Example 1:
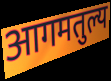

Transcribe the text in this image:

आगमतुल्य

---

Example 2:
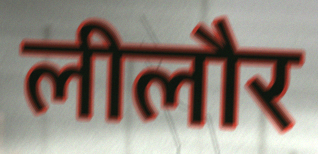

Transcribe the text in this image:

लीलौर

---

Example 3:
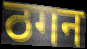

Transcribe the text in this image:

ठगन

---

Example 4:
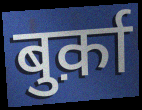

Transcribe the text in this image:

बुर्क़ा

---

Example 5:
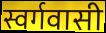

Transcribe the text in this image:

स्वर्गवासी